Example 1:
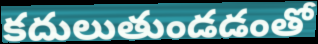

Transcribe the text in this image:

కదులుతుండడంతో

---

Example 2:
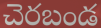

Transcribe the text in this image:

చెరబండ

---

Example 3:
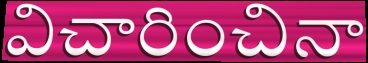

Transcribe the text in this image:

విచారించినా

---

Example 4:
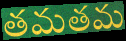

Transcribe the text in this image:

తమతమ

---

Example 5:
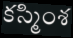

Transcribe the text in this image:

కస్మింశ